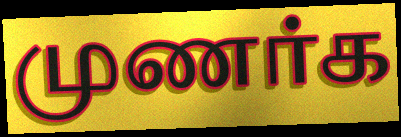
முணர்க